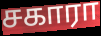
சகாரா